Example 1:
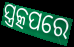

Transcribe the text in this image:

ସ୍ତ୍ରତ୍କପରେ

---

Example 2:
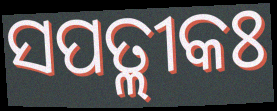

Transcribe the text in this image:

ସପତ୍ଲୀକଃ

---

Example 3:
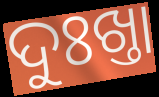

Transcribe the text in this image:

ଦୁଃଖ୍ତା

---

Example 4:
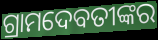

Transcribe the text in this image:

ଗ୍ରାମଦେବତୀଙ୍କର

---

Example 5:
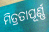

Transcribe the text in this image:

ମିତ୍ରତାପୂର୍ଣ୍ଣ